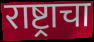
राष्ट्राचा